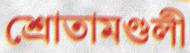
শ্রোতামণ্ডলী